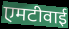
एमटीवाई